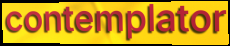
contemplator